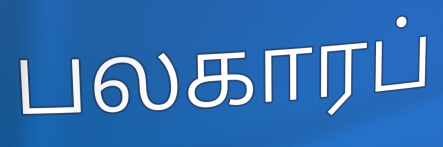
பலகாரப்